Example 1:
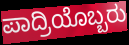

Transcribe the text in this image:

ಪಾದ್ರಿಯೊಬ್ಬರು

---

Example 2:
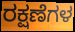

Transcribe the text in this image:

ರಕ್ಷಣೆಗಳ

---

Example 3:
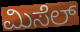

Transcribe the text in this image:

ಮಿಸೆಲ್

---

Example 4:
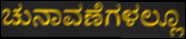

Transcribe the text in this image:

ಚುನಾವಣೆಗಳಲ್ಲೂ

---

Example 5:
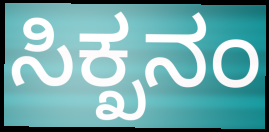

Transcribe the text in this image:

ಸಿಕ್ಖನಂ